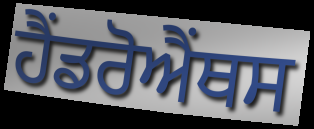
ਹੈਂਡਰੋਐਂਥਸ